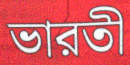
ভারতী